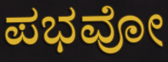
ಪಭವೋ